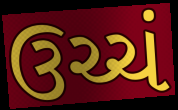
ઉચ્ચં